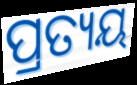
ପ୍ରତ୍ୟୟ